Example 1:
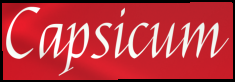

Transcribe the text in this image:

Capsicum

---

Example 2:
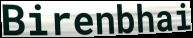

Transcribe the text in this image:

Birenbhai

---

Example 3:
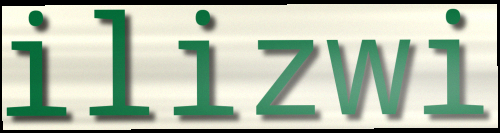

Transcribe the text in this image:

ilizwi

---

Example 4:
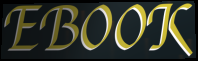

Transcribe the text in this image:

EBOOK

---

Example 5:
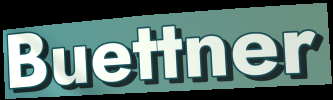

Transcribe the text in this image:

Buettner